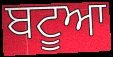
ਬਟੂਆ